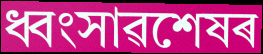
ধ্বংসাৱশেষৰ